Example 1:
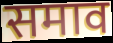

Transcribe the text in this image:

समाव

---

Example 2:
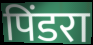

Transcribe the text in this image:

पिंडरा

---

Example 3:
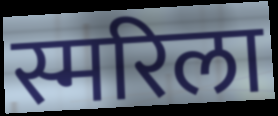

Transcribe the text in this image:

स्मरिला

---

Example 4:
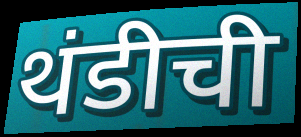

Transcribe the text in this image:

थंडीची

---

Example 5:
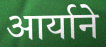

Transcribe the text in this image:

आर्याने